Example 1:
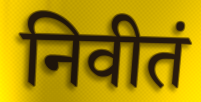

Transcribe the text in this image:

निवीतं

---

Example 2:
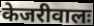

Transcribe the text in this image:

केजरीवालः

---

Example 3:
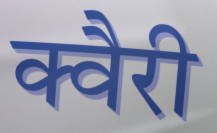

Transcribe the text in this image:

क्वैरी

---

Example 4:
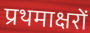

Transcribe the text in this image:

प्रथमाक्षरों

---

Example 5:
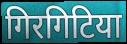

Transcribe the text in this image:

गिरगिटिया